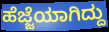
ಹೆಜ್ಜೆಯಾಗಿದ್ದು